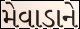
મેવાડાને